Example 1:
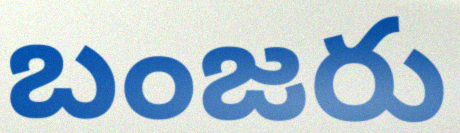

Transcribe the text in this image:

బంజరు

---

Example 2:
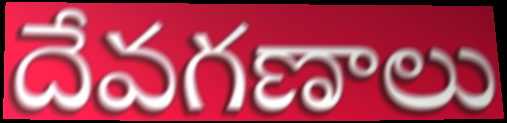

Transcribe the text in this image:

దేవగణాలు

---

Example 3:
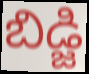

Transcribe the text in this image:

బిడ్జి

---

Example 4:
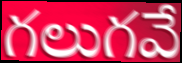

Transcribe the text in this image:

గలుగవే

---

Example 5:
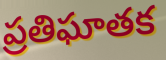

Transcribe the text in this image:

ప్రతిఘాతక